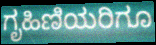
ಗೃಹಿಣಿಯರಿಗೂ